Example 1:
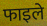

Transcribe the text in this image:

फाइले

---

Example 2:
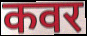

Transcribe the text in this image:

कवर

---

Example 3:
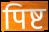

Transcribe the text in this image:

पिष्ट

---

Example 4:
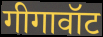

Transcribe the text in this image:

गीगावॉट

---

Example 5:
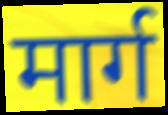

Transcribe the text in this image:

मार्ग